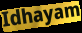
Idhayam